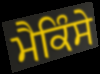
ਮੈਕਿੰਸੇ